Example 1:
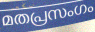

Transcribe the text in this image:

മതപ്രസംഗം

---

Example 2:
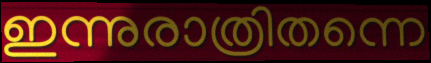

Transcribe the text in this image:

ഇന്നുരാത്രിതന്നെ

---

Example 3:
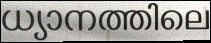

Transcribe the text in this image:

ധ്യാനത്തിലെ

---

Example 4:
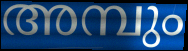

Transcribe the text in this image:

അമ്പും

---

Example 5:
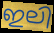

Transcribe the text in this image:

ഇലി